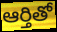
ఆర్తితో